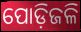
ପୋଡ଼ିଜଳି